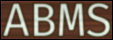
ABMS